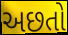
અછતો